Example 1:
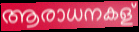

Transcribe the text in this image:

ആരാധനകള്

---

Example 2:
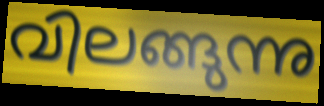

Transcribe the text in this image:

വിലങ്ങുന്നു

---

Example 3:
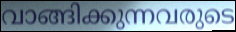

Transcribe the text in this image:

വാങ്ങിക്കുന്നവരുടെ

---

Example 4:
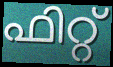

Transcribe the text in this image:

ഫിറ്റ്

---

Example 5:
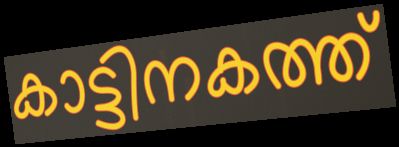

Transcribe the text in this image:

കാട്ടിനകത്ത്